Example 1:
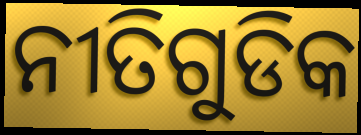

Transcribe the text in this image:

ନୀତିଗୁଡିକ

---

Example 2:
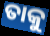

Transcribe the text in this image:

ତାକୁ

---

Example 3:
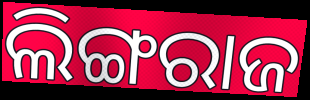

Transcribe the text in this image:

ଲିଙ୍ଗରାଜ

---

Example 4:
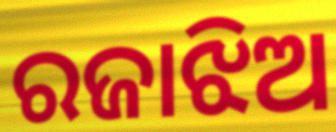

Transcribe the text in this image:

ରଜାଝିଅ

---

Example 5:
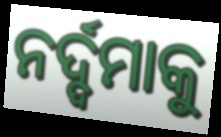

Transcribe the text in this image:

ନର୍ଦ୍ଦମାକୁ